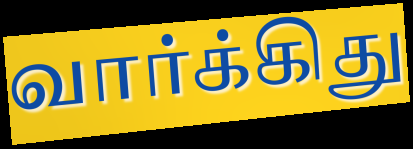
வார்க்கிது